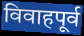
विवाहपूर्व